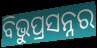
ବିଭୁପ୍ରସନ୍ନର